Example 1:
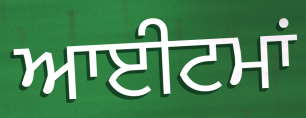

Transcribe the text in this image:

ਆਈਟਮਾਂ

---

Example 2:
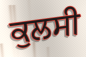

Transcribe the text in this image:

ਕੁਲਸੀ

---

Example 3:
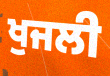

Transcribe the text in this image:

ਖੁਜਲੀ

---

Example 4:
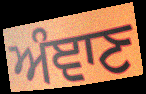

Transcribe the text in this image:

ਅੰਞਾਣ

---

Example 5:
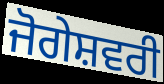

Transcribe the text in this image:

ਜੋਗੇਸ਼ਵਰੀ